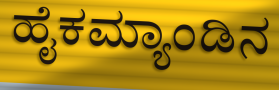
ಹೈಕಮ್ಯಾಂಡಿನ